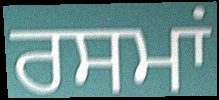
ਰਸਮਾਂ